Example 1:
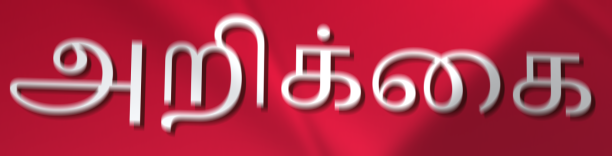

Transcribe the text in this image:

அறிக்கை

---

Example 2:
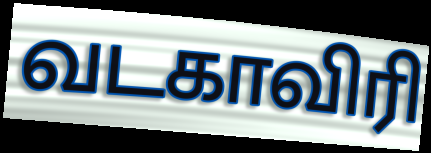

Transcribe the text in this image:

வடகாவிரி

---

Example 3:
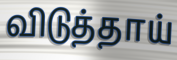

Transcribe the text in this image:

விடுத்தாய்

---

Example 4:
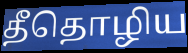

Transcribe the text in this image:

தீதொழிய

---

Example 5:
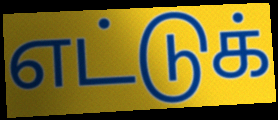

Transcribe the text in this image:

எட்டுக்